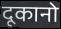
दूकानो